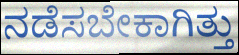
ನಡೆಸಬೇಕಾಗಿತ್ತು